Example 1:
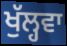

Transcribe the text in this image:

ਖੁੱਲ੍ਹਵਾ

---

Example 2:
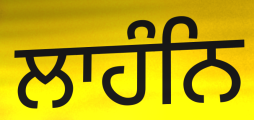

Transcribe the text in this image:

ਲਾਹੰਨਿ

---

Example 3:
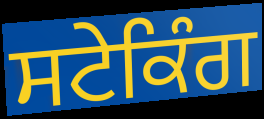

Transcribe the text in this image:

ਸਟੇਕਿੰਗ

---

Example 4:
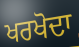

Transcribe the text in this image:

ਖਰਖੋਦਾ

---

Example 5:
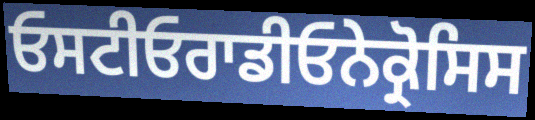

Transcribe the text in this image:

ਓਸਟੀਓਰਾਡੀਓਨੇਕ੍ਰੋਸਿਸ